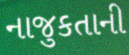
નાજુકતાની